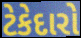
ટેકેદારો